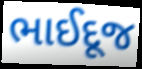
ભાઈદૂજ